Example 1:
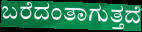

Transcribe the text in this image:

ಬರೆದಂತಾಗುತ್ತದೆ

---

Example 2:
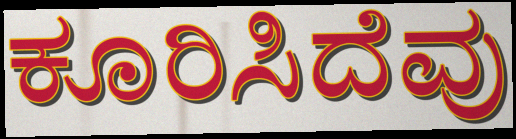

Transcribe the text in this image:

ಕೂರಿಸಿದೆವು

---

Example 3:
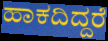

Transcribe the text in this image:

ಹಾಕದಿದ್ದರೆ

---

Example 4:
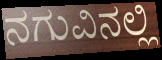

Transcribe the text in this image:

ನಗುವಿನಲ್ಲಿ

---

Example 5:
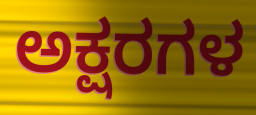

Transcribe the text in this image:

ಅಕ್ಷರಗಳ